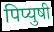
पिप्युषी